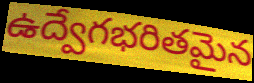
ఉద్వేగభరితమైన